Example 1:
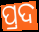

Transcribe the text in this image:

ପ୍ରଦ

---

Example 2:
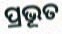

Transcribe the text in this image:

ପ୍ରଭୂତ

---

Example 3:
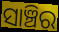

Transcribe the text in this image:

ସାଞ୍ଚିର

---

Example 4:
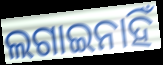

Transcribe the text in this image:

ଲଗାଇନାହିଁ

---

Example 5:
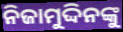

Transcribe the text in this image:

ନିଜାମୁଦ୍ଦିନଙ୍କୁ